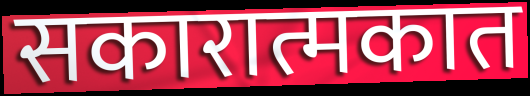
सकारात्मकात